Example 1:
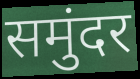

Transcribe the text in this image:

समुंदर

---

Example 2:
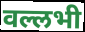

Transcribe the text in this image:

वल्लभी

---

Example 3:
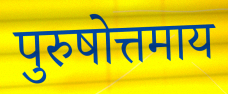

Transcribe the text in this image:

पुरुषोत्तमाय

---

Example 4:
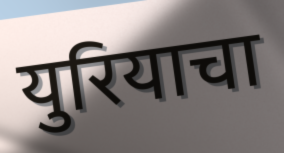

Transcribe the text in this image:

युरियाचा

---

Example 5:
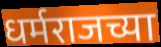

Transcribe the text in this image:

धर्मराजच्या